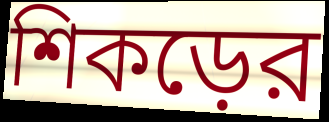
শিকড়ের